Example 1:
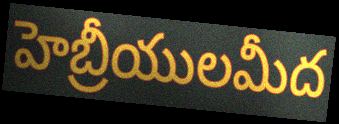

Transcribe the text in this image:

హెబ్రీయులమీద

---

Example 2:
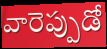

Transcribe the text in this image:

వారెప్పుడో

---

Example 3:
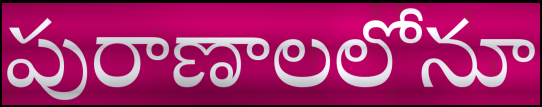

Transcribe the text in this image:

పురాణాలలోనూ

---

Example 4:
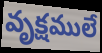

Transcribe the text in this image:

వృక్షములే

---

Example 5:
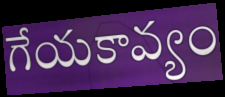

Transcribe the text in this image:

గేయకావ్యం